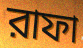
রাফা